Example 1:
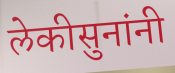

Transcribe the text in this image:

लेकीसुनांनी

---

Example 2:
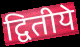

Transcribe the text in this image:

द्वितीये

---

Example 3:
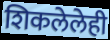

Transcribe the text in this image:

शिकलेलेही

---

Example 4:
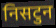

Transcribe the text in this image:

निसटुन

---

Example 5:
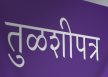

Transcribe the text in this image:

तुळशीपत्र